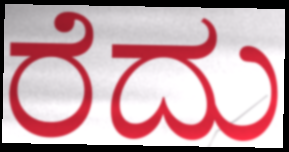
ರೆದು